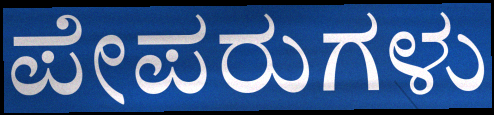
ಪೇಪರುಗಳು